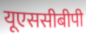
यूएससीबीपी